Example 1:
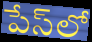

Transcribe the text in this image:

పేస్‌లో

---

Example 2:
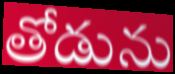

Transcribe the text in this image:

తోడును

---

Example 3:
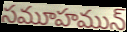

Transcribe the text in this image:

సమూహమున్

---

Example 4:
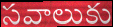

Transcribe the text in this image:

సవాలుకు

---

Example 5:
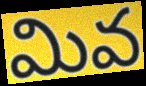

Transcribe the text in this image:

మివ